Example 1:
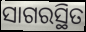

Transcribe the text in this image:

ସାଗରସ୍ଥିତ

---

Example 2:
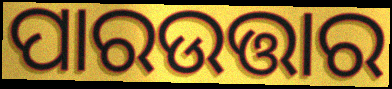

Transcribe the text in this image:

ପାରଉତ୍ତାର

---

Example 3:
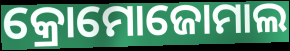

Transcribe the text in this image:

କ୍ରୋମୋଜୋମାଲ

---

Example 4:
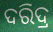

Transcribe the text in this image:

ଦରିଦ୍ର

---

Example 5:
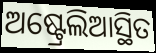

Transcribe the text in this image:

ଅଷ୍ଟ୍ରେଲିଆସ୍ଥିତ